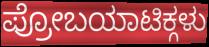
ಪ್ರೋಬಯಾಟಿಕ್ಗಳು